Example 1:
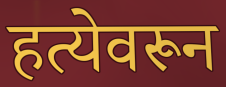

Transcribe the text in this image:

हत्येवरून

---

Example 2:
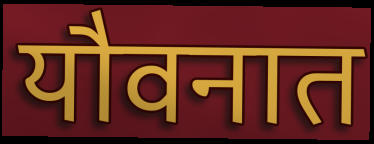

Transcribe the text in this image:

यौवनात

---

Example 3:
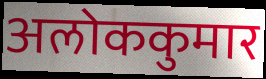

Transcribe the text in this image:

अलोककुमार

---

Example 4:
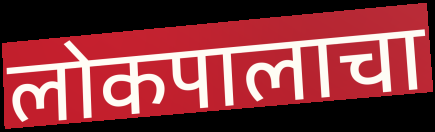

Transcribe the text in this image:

लोकपालाचा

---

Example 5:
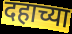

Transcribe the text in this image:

दहाच्या